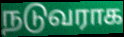
நடுவராக